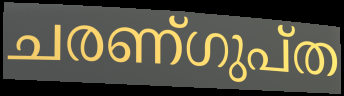
ചരണ്ഗുപ്ത